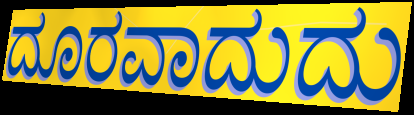
ದೂರವಾದುದು